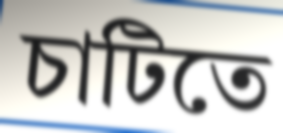
চাটিতে